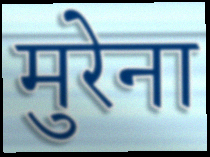
मुरेना